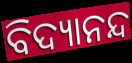
ବିଦ୍ୟାନନ୍ଦ